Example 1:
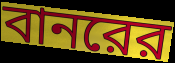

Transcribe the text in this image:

বানরের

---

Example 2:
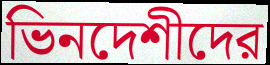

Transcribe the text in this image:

ভিনদেশীদের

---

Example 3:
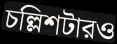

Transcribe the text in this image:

চল্লিশটারও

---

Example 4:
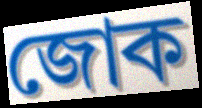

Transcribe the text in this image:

জোক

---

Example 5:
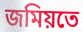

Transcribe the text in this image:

জমিয়তে